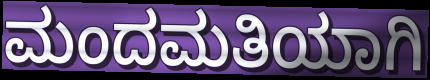
ಮಂದಮತಿಯಾಗಿ